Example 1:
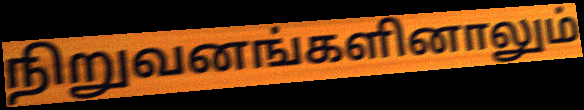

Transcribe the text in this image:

நிறுவனங்களினாலும்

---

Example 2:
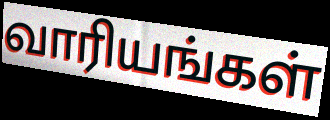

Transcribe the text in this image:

வாரியங்கள்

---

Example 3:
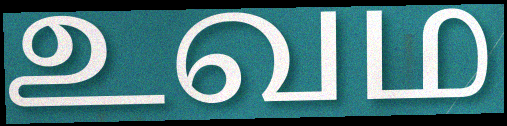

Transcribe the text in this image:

உவம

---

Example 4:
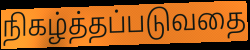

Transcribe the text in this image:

நிகழ்த்தப்படுவதை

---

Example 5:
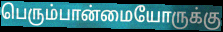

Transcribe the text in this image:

பெரும்பான்மையோருக்கு